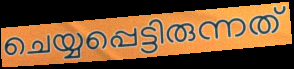
ചെയ്യപ്പെട്ടിരുന്നത്